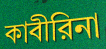
কাবীরিনা